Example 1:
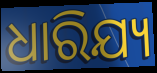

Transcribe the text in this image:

ଧାରିଯ୍ୟ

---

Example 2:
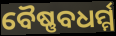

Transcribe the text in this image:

ବୈଷ୍ଣବଧର୍ମ୍ମ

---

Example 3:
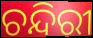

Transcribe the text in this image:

ଚନ୍ଦିରୀ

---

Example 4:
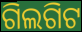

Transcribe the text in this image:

ଗିଲଗିଟ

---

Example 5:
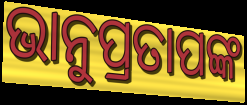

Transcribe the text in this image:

ଭାନୁପ୍ରତାପଙ୍କ